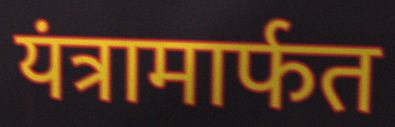
यंत्रामार्फत